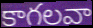
కాగలవా